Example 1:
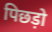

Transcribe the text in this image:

पिछड़ो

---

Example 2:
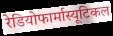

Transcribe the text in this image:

रेडियोफार्मास्यूटिकल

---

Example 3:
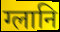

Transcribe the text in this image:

ग्लानि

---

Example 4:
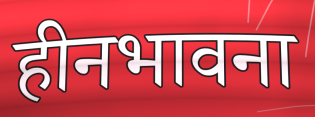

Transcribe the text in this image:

हीनभावना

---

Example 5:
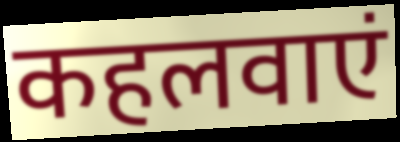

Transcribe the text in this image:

कहलवाएं